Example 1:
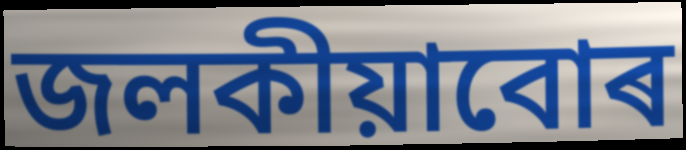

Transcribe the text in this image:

জলকীয়াবোৰ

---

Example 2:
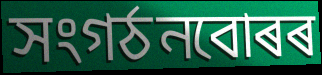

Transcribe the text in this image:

সংগঠনবোৰৰ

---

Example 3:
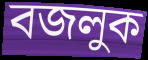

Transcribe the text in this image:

বজলুক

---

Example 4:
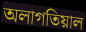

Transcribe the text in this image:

অলাগতিয়াল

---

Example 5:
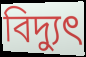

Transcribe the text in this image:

বিদ্যুৎ